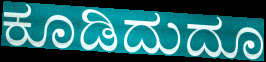
ಕೂಡಿದುದೂ